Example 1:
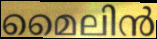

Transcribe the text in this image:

മൈലിൻ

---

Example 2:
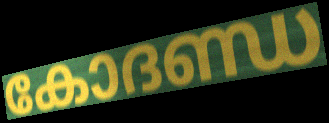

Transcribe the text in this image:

കോദണ്ഡ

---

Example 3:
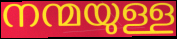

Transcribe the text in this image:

നന്മയുള്ള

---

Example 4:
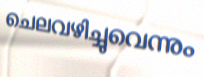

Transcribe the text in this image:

ചെലവഴിച്ചുവെന്നും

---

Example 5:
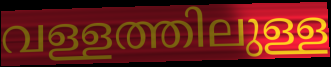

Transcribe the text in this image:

വള്ളത്തിലുള്ള